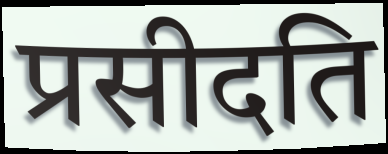
प्रसीदति